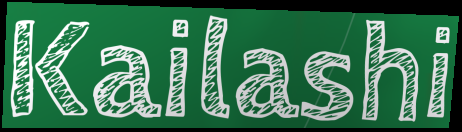
Kailashi